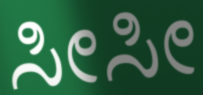
ಸೀಸೀ